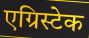
एग्रिस्टेक